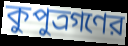
কুপুত্রগণের